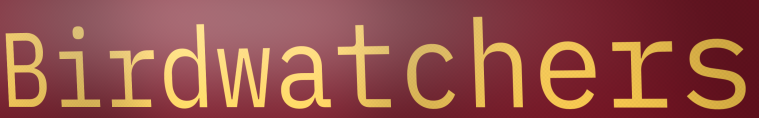
Birdwatchers